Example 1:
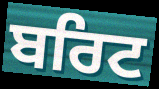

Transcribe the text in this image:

ਬਰਿਟ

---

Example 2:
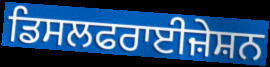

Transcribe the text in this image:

ਡਿਸਲਫਰਾਈਜ਼ੇਸ਼ਨ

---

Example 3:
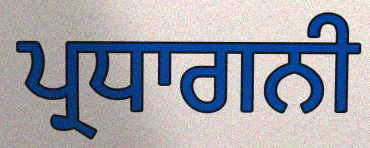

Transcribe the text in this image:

ਪ੍ਰਧਾਗਨੀ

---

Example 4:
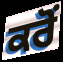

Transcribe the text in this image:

ਕਰੋਂ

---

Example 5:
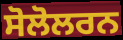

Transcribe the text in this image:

ਸੋਲੋਲਰਨ